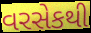
વરસેકથી